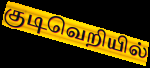
குடிவெறியில்